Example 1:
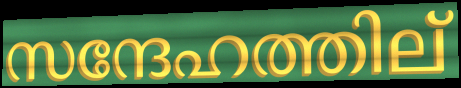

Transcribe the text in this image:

സന്ദേഹത്തില്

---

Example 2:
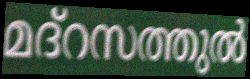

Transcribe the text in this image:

മദ്റസത്തുൽ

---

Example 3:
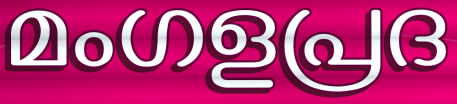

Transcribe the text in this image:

മംഗളപ്രദ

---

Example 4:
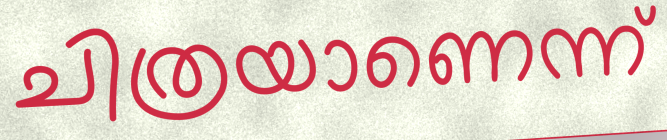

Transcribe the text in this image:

ചിത്രയാണെന്ന്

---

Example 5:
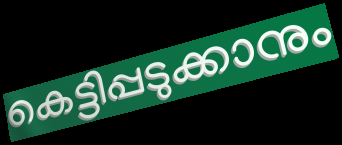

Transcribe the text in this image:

കെട്ടിപ്പടുക്കാനും